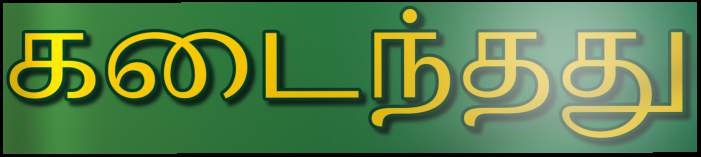
கடைந்தது